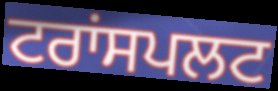
ਟਰਾਂਸਪਲਟ